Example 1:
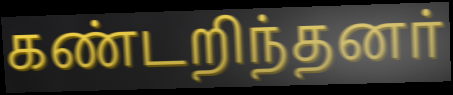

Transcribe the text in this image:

கண்டறிந்தனர்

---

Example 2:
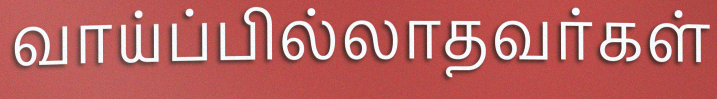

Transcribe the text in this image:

வாய்ப்பில்லாதவர்கள்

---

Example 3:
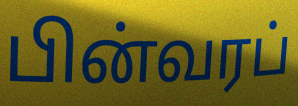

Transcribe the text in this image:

பின்வரப்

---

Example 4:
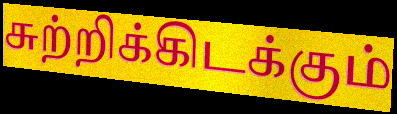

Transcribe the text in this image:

சுற்றிக்கிடக்கும்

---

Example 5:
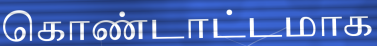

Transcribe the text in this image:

கொண்டாட்டமாக